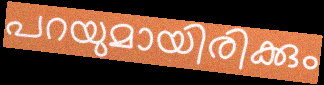
പറയുമായിരിക്കും